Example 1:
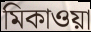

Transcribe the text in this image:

মিকাওয়া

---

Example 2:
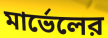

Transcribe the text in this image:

মার্ভেলের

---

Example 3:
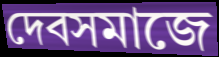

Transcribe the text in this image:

দেবসমাজে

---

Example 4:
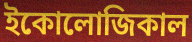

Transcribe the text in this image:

ইকোলোজিকাল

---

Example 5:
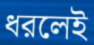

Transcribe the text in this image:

ধরলেই